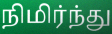
நிமிர்ந்து